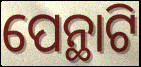
ପେନ୍ଥାଟି